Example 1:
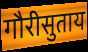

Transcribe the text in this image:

गौरीसुताय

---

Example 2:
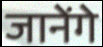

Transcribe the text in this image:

जानेंगे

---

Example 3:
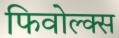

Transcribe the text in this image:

फिवोल्क्स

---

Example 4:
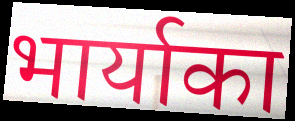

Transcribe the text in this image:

भार्याका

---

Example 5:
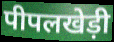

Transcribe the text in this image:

पीपलखेड़ी